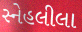
સ્નેહલીલા